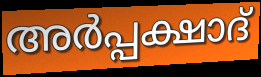
അർപ്പക്ഷാദ്